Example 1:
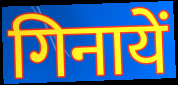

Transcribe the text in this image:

गिनायें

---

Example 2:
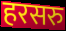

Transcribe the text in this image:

हरसरु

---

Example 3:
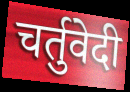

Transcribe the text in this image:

चर्तुवेदी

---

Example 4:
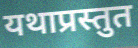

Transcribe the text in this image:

यथाप्रस्तुत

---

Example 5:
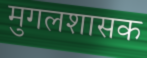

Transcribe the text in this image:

मुगलशासक